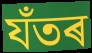
যঁতৰ